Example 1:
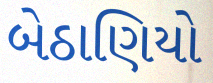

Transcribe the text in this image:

બેઠાણિયો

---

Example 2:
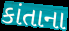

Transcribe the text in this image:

કાંતાના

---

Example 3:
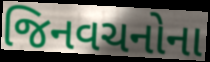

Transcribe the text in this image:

જિનવચનોના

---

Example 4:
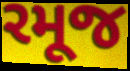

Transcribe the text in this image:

રમૂજ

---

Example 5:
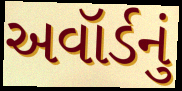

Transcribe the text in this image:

અવૉર્ડનું